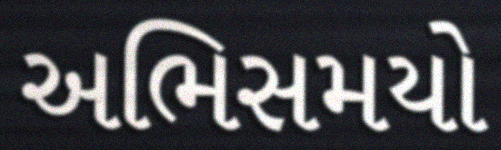
અભિસમયો